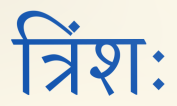
त्रिंशः